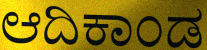
ಆದಿಕಾಂಡ